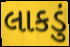
લાકડું